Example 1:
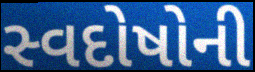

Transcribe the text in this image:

સ્વદોષોની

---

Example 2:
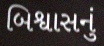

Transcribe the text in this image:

બિશ્વાસનું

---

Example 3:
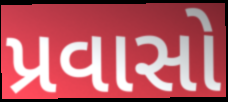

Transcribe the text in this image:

પ્રવાસો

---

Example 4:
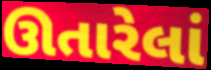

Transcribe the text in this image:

ઊતારેલાં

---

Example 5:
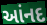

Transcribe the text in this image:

આંનદ